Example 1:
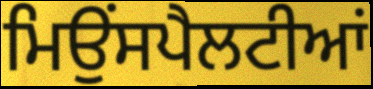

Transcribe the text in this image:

ਮਿਉਂਸਪੈਲਟੀਆਂ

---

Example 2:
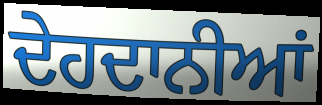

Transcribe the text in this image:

ਦੇਹਦਾਨੀਆਂ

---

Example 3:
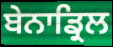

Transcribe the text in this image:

ਬੇਨਾਡ੍ਰਿਲ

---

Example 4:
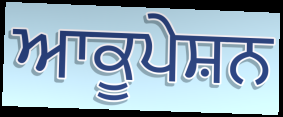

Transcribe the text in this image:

ਆਕੂਪੇਸ਼ਨ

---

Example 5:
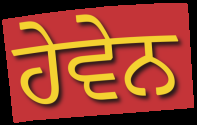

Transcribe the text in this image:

ਹੇਵੇਨ